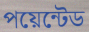
পয়েন্টেড